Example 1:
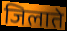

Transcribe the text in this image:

जिलाते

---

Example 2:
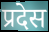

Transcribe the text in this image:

प्रदेस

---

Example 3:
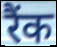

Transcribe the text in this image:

रैंक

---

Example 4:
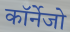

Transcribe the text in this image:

कॉर्नेजो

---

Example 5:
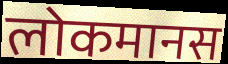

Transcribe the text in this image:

लोकमानस